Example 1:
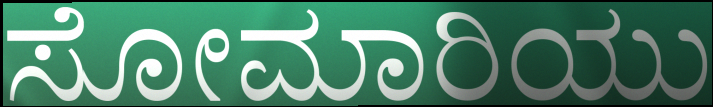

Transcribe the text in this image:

ಸೋಮಾರಿಯು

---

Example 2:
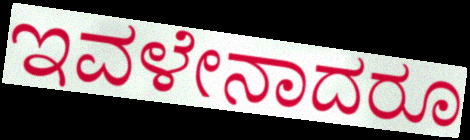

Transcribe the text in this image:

ಇವಳೇನಾದರೂ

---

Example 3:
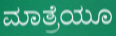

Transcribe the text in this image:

ಮಾತ್ರೆಯೂ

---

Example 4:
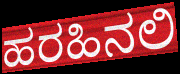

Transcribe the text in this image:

ಹರಹಿನಲಿ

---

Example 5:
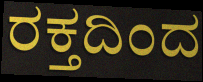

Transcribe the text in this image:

ರಕ್ತದಿಂದ